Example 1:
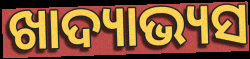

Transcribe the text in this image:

ଖାଦ୍ୟାଭ୍ୟସ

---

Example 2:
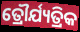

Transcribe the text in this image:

ତ୍ରୌର୍ଯ୍ୟତ୍ରିକ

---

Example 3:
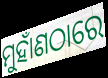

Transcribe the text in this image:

ମୁହାଁଣଠାରେ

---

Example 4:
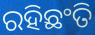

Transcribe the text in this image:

ରହିଛଂତି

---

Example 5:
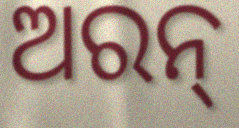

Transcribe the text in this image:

ଅରନ୍